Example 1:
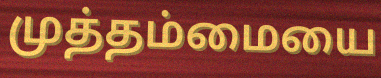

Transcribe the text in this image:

முத்தம்மையை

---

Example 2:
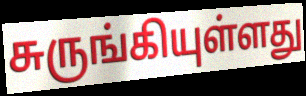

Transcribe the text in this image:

சுருங்கியுள்ளது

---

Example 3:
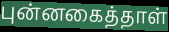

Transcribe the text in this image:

புன்னகைத்தாள்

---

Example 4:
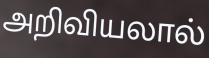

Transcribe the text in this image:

அறிவியலால்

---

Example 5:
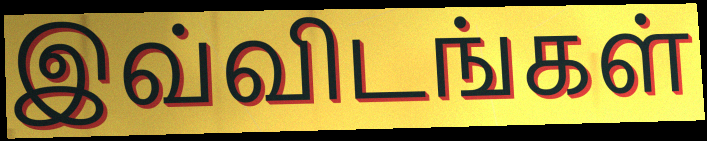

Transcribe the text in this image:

இவ்விடங்கள்